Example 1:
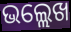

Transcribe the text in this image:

ଭଲ୍ଲେଖ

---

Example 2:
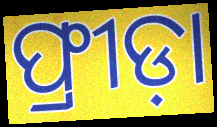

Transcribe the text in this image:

ଫ୍ରୀଡ଼ା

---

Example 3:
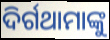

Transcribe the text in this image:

ଦିର୍ଗଥାମାଙ୍କୁ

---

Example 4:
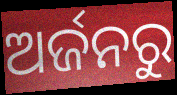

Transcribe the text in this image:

ଅର୍ଜନରୁ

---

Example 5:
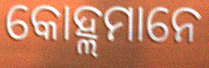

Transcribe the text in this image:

କୋହ୍ଲମାନେ